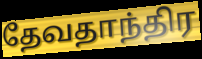
தேவதாந்திர